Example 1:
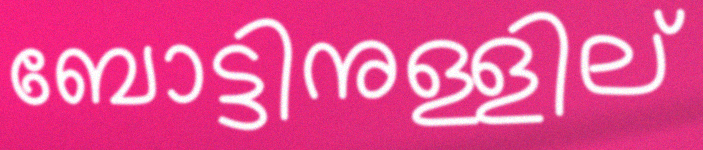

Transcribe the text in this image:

ബോട്ടിനുള്ളില്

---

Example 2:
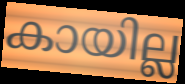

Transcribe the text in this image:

കായില്ല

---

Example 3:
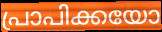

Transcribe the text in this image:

പ്രാപിക്കയോ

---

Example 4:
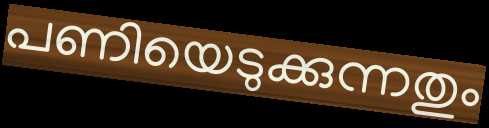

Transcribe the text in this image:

പണിയെടുക്കുന്നതും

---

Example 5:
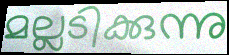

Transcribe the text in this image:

മല്ലടിക്കുന്നു